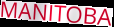
MANITOBA